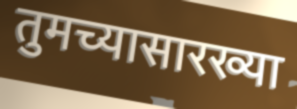
तुमच्यासारख्या